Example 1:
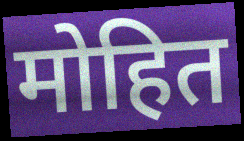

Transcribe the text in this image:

मोहित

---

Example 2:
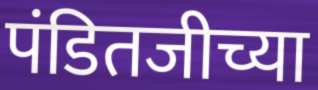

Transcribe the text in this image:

पंडितजीच्या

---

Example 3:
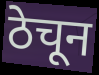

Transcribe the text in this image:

ठेचून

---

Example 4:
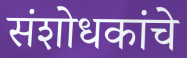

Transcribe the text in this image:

संशोधकांचे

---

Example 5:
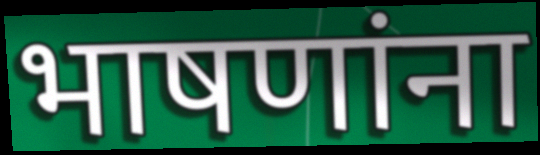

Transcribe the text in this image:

भाषणांना